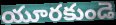
యూరకుండె